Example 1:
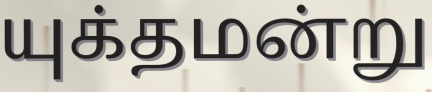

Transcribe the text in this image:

யுக்தமன்று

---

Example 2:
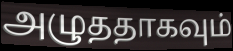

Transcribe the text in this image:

அழுததாகவும்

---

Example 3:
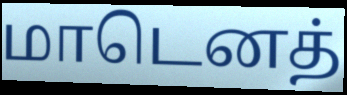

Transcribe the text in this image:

மாடெனத்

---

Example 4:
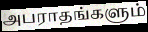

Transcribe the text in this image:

அபராதங்களும்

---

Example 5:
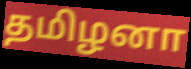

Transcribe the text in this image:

தமிழனா